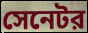
সেনেটর